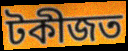
টকীজত